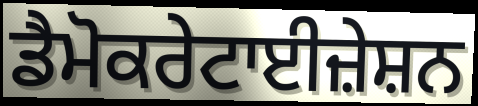
ਡੈਮੋਕਰੇਟਾਈਜ਼ੇਸ਼ਨ